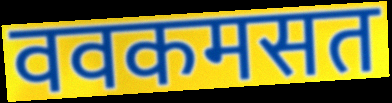
ववकमसत